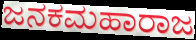
ಜನಕಮಹಾರಾಜ